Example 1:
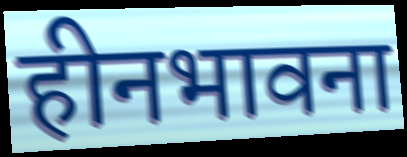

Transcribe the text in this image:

हीनभावना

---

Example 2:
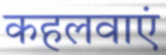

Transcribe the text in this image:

कहलवाएं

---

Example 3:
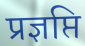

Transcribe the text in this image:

प्रज्ञप्ति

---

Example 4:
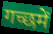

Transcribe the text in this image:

गच्छमें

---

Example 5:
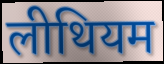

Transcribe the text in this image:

लीथियम